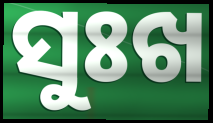
ସୁଃଖ